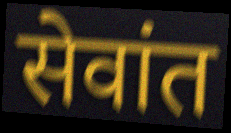
सेवांत